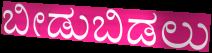
ಬೀಡುಬಿಡಲು